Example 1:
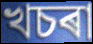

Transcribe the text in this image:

খচৰা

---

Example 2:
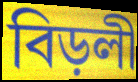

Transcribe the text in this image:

বিড়লী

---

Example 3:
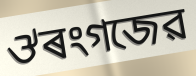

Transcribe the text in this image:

ঔৰংগজেৱ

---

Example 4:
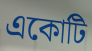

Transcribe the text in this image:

একোটি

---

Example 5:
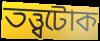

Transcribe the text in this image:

তত্ত্বটোক